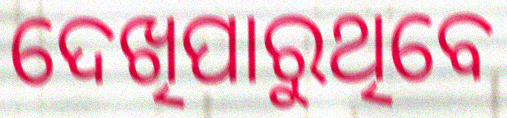
ଦେଖିପାରୁଥିବେ